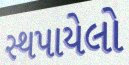
સ્થપાયેલો